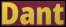
Dant